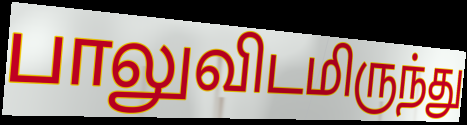
பாலுவிடமிருந்து